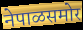
नेपाळसमोर